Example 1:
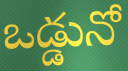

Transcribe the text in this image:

ఒడ్డునో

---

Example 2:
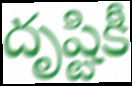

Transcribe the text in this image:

దృష్టికీ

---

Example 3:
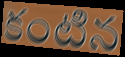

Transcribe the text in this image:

కంటిన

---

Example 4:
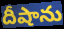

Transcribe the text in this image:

దీషాను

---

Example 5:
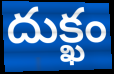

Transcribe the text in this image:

దుక్ఖం